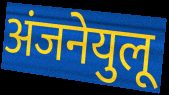
अंजनेयुलू